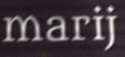
marij